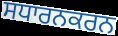
ਸਧਾਰਨਕਰਨ